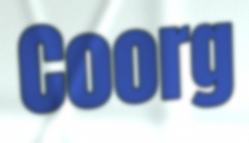
Coorg